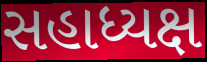
સહાધ્યક્ષ